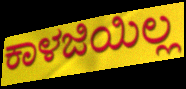
ಕಾಳಜಿಯಿಲ್ಲ